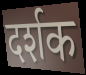
दर्शक